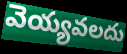
వెయ్యవలదు